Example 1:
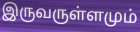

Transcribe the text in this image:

இருவருள்ளமும்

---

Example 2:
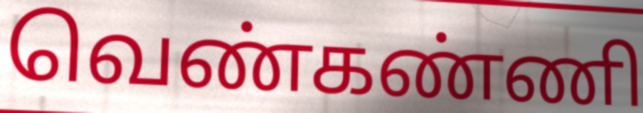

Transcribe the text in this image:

வெண்கண்ணி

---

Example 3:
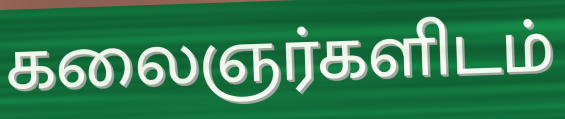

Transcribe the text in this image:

கலைஞர்களிடம்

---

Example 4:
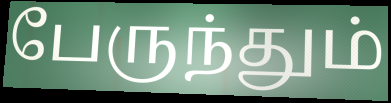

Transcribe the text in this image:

பேருந்தும்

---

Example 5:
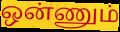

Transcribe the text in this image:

ஒன்ணும்